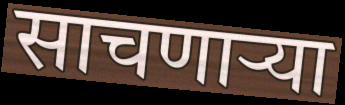
साचणार्‍या